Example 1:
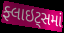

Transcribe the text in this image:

ફ્લાઇટ્સમાં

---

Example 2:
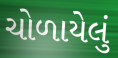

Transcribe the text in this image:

ચોળાયેલું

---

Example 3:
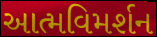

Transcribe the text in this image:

આત્મવિમર્શન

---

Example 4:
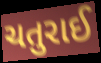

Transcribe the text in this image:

ચતુરાઈ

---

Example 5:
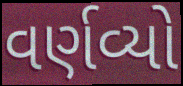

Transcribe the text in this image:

વર્ણવ્યો